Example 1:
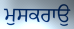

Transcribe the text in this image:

ਮੁਸਕਰਾਉ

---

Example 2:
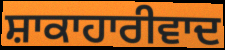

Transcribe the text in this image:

ਸ਼ਾਕਾਹਾਰੀਵਾਦ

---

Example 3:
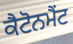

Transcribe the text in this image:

ਕੈਟੋਨਮੈਂਟ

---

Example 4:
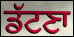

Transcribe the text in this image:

ਡੱਟਣਾ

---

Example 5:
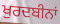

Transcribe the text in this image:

ਖੁਰਦਬੀਨਾਂ